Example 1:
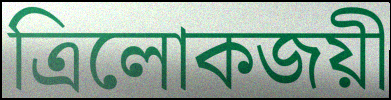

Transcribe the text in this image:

ত্রিলোকজয়ী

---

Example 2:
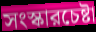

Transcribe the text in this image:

সংস্কারচেষ্টা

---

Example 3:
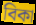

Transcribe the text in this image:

বিকা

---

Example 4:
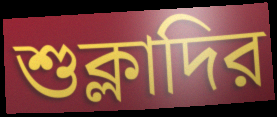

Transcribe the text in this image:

শুক্লাদির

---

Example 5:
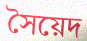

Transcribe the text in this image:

সৈয়েদ